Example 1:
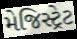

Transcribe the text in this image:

મેજિસ્ટ્રેટ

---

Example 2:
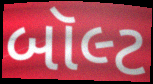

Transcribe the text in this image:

બૉલ્ટ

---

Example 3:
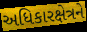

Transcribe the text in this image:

અધિકારક્ષેત્રને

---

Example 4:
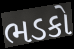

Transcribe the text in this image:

ભડકો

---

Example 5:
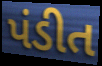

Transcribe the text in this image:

પંડીત